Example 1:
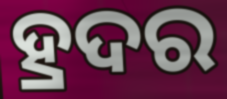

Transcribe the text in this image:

ହ୍ରଦର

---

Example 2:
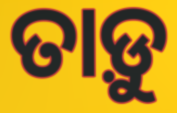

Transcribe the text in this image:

ତାଡ଼ୁ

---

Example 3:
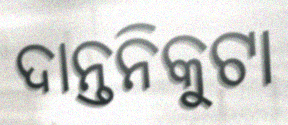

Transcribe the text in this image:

ଦାନ୍ତନିକୁଟା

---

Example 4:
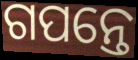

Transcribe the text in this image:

ଗପନ୍ତେ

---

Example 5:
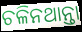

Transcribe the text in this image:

ଚଳିନଥାନ୍ତା